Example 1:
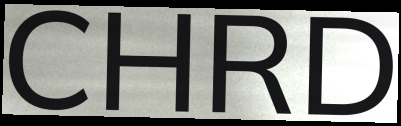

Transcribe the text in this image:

CHRD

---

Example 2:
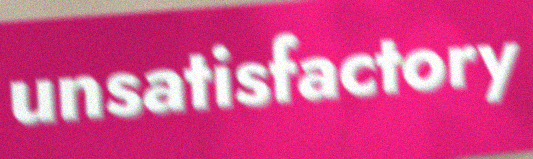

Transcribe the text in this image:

unsatisfactory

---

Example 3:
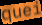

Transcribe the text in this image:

quei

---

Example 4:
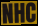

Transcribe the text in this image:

NHC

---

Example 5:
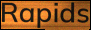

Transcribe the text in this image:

Rapids